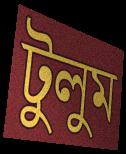
টুলুম